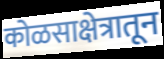
कोळसाक्षेत्रातून